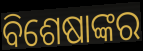
ବିଶେଷାଙ୍କର